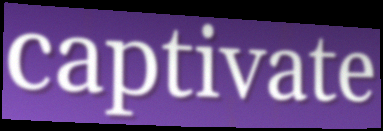
captivate